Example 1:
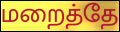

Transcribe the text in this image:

மறைத்தே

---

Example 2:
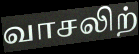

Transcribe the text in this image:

வாசலிற்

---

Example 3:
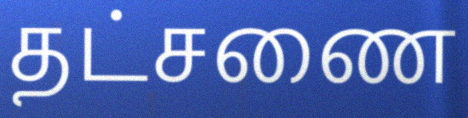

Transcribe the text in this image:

தட்சணை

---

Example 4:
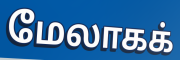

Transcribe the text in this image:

மேலாகக்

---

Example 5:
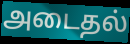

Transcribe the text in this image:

அடைதல்